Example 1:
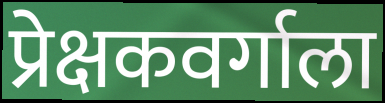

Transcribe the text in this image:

प्रेक्षकवर्गाला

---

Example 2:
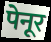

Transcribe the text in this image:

पेनूर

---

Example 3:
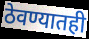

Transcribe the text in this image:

ठेवण्यातही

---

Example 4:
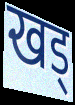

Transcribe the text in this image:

खड्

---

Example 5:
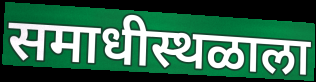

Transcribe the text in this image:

समाधीस्थळाला